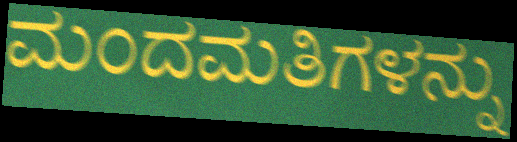
ಮಂದಮತಿಗಳನ್ನು